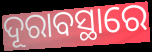
ଦୂରାବସ୍ଥାରେ